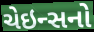
ચેઇન્સનો